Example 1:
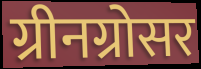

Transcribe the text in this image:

ग्रीनग्रोसर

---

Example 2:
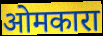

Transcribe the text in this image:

ओमकारा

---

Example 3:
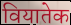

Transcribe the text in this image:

वियातेक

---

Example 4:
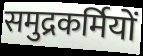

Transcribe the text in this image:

समुद्रकर्मियों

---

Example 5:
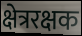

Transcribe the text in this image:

क्षेत्ररक्षक